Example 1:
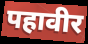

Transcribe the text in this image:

पहावीर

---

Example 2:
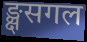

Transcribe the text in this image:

ङ्क्षसगल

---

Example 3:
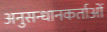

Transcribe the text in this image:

अनुसन्धानकर्ताओं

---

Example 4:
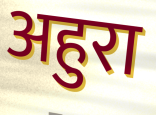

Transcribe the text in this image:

अहुरा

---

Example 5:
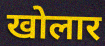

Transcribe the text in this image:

खोलार